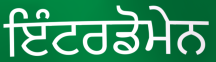
ਇੰਟਰਡੋਮੇਨ